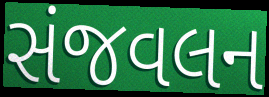
સંજવલન